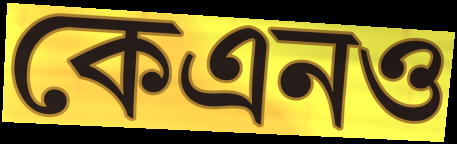
কেএনও